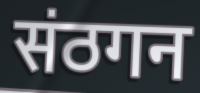
संठगन